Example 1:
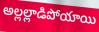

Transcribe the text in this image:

అల్లల్లాడిపోయాయి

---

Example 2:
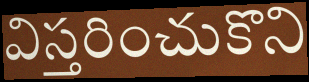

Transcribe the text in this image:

విస్తరించుకొని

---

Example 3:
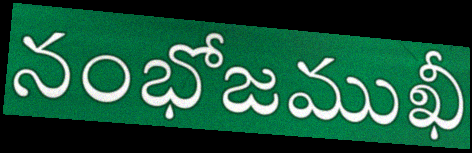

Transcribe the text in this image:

నంభోజముఖీ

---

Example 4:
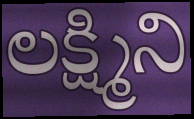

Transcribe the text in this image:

లక్ష్మిని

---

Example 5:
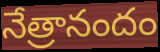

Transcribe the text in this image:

నేత్రానందం